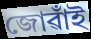
জোৱাঁই